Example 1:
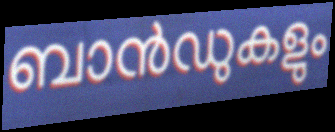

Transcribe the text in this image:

ബാൻഡുകളും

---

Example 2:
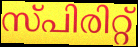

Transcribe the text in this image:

സ്പിരിറ്റ്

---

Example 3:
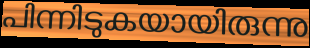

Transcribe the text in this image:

പിന്നിടുകയായിരുന്നു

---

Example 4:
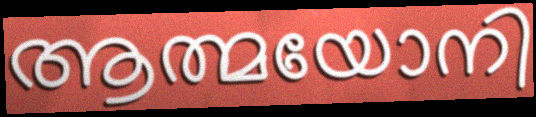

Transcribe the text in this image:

ആത്മയോനി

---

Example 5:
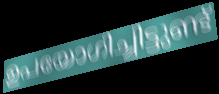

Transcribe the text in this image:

ഉപയോഗിച്ചിട്ടുണ്ട്